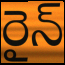
రైన్